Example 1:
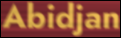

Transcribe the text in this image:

Abidjan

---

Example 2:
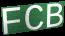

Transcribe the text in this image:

FCB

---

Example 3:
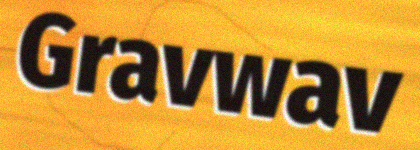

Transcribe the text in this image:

Gravwav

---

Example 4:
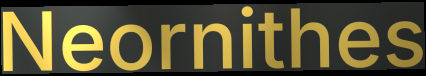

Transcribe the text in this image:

Neornithes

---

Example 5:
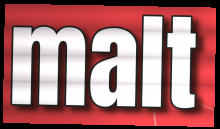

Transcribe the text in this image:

malt